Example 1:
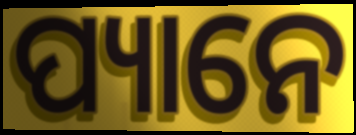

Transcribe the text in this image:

ପ୍ୟାନେ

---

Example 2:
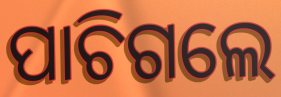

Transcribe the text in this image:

ପାଚିଗଲେ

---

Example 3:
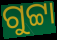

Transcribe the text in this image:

ଗୁଟ୍ଟା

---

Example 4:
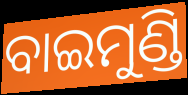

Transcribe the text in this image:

ବାଇମୁଣ୍ଡି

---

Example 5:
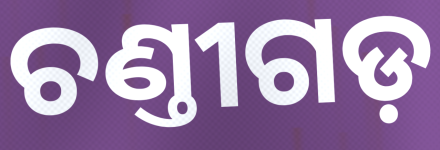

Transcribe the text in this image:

ଚଣ୍ତୀଗଡ଼